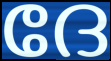
ദേ